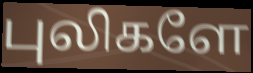
புலிகளே